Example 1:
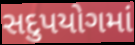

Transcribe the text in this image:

સદુપયોગમાં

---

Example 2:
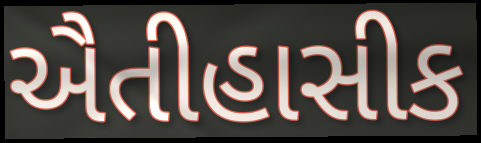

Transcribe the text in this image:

ઐતીહાસીક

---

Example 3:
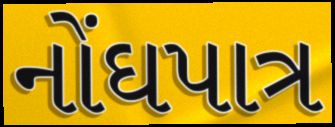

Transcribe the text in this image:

નોંઘપાત્ર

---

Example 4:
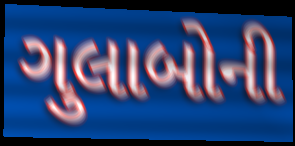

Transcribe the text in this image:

ગુલાબોની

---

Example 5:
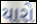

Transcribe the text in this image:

યારો